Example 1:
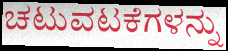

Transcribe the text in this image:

ಚಟುವಟಕೆಗಳನ್ನು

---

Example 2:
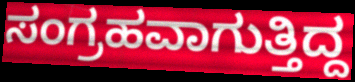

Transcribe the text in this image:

ಸಂಗ್ರಹವಾಗುತ್ತಿದ್ದ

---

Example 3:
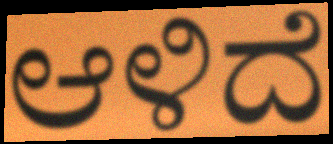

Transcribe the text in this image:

ಆಳಿದೆ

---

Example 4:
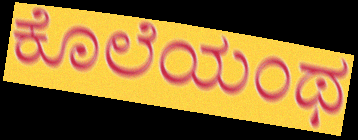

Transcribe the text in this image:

ಕೊಲೆಯಂಥ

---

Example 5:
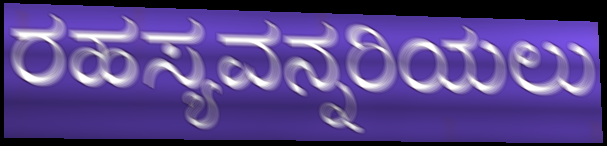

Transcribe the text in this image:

ರಹಸ್ಯವನ್ನರಿಯಲು